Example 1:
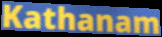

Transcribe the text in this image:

Kathanam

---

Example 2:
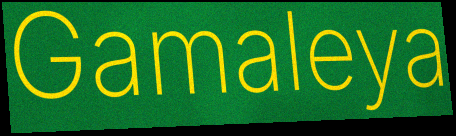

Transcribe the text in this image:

Gamaleya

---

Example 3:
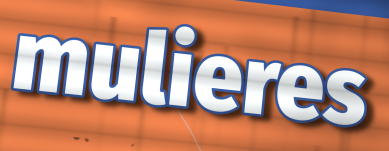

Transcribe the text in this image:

mulieres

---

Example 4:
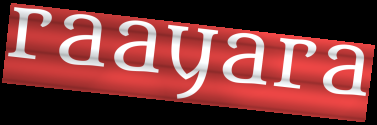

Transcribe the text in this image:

raayara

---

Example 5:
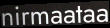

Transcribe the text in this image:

nirmaataa